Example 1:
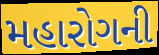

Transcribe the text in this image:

મહારોગની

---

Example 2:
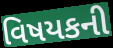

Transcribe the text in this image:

વિષયકની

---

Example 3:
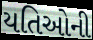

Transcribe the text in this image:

યતિઓની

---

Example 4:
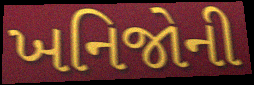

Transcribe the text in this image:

ખનિજોની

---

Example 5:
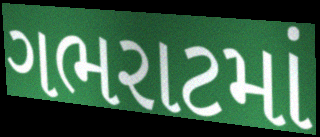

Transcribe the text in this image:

ગભરાટમાં